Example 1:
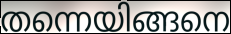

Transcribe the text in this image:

തന്നെയിങ്ങനെ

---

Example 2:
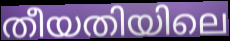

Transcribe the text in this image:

തീയതിയിലെ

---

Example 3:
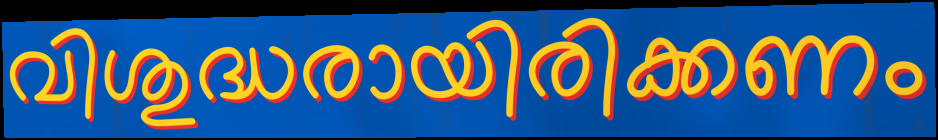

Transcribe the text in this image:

വിശുദ്ധരായിരിക്കണം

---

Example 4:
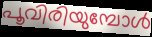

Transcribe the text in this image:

പൂവിരിയുമ്പോൾ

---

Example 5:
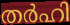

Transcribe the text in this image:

തർഹി